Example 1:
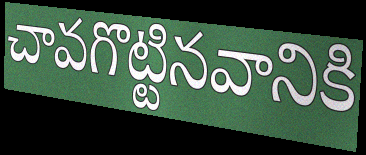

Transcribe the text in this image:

చావగొట్టినవానికి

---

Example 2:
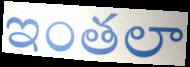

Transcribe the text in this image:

ఇంతలా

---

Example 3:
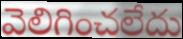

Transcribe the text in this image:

వెలిగించలేదు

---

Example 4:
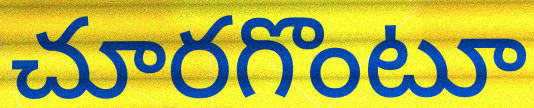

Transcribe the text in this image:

చూరగొంటూ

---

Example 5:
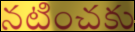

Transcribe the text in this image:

నటించకు